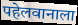
पहेलवानाला